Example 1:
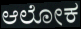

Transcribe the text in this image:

ಆಲೋಕ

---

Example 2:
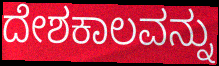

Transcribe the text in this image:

ದೇಶಕಾಲವನ್ನು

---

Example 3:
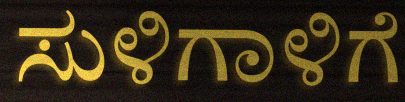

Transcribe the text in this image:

ಸುಳಿಗಾಳಿಗೆ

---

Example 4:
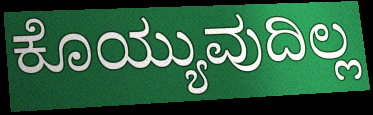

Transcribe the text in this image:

ಕೊಯ್ಯುವುದಿಲ್ಲ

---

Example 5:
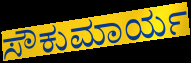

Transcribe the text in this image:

ಸೌಕುಮಾರ್ಯ